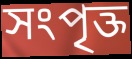
সংপৃক্ত